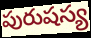
పురుషస్య